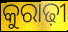
କୁରାଢ଼ୀ